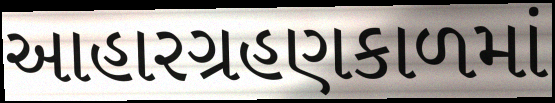
આહારગ્રહણકાળમાં